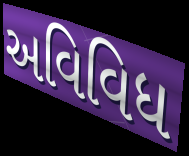
અવિવિધ